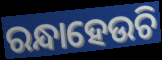
ରନ୍ଧାହେଉଚି